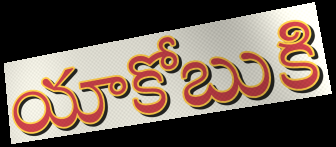
యాకోబుకి